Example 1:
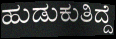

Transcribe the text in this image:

ಹುಡುಕುತಿದ್ದೆ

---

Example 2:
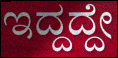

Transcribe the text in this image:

ಇದ್ದದ್ದೇ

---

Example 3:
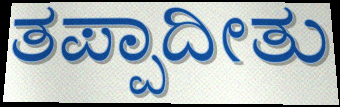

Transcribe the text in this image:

ತಪ್ಪಾದೀತು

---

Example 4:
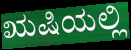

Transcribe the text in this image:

ಋಷಿಯಲ್ಲಿ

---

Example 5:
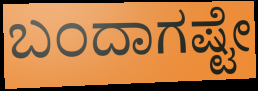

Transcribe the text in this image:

ಬಂದಾಗಷ್ಟೇ